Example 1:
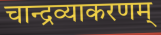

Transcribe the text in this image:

चान्द्रव्याकरणम्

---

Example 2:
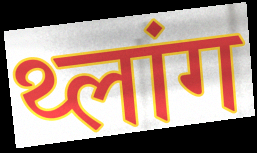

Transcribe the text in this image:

थ्लांग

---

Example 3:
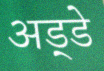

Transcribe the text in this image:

अड्‍डे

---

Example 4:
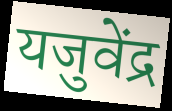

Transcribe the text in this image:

यजुवेंद्र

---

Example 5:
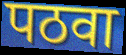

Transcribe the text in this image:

पठवा